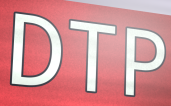
DTP